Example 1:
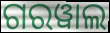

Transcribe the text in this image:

ଗରୱାଲ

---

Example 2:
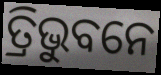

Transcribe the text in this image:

ତ୍ରିଭୁବନେ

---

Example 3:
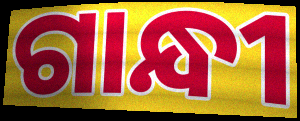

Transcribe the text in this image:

ଗାନ୍ଧୀ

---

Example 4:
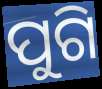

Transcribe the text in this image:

ପୁଗି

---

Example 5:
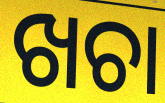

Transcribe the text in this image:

ଖଚା